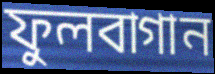
ফুলবাগান